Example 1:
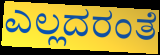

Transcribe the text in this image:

ಎಲ್ಲದರಂತೆ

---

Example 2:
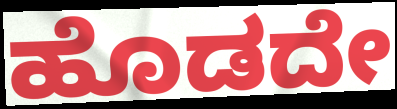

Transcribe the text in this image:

ಹೊಡದೇ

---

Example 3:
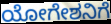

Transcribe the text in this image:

ಯೋಗೇಶನಿಗೆ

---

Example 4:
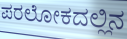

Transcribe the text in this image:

ಪರಲೋಕದಲ್ಲಿನ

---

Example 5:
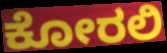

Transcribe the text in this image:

ಕೋರಲಿ